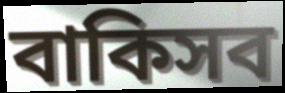
বাকিসব